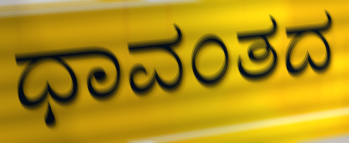
ಧಾವಂತದ